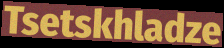
Tsetskhladze